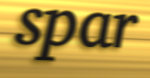
spar